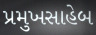
પ્રમુખસાહેબ